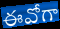
ఈవోగా